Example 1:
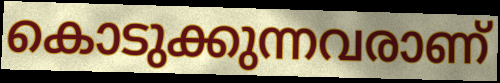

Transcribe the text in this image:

കൊടുക്കുന്നവരാണ്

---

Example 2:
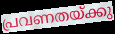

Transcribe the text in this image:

പ്രവണതയ്ക്കു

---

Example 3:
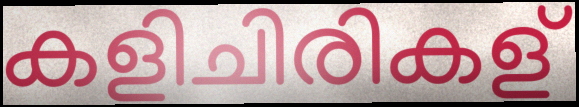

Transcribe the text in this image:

കളിചിരികള്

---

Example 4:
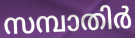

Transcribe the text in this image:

സമ്പാതിർ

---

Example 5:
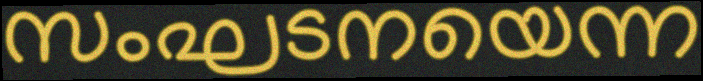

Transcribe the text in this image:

സംഘടനയെന്ന